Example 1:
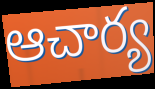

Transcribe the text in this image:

ఆచార్య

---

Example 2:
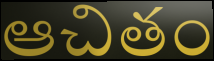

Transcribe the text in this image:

ఆచితం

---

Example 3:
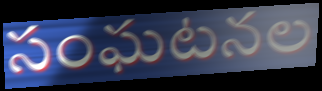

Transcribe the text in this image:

సంఘటనల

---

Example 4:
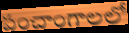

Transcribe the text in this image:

పంచాంగాలలో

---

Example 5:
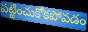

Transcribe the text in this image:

పట్టించుకోకపోవడం